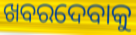
ଖବରଦେବାକୁ